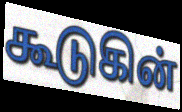
கூடுகின்